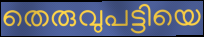
തെരുവുപട്ടിയെ